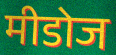
मीडोज